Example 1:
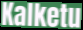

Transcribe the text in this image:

Kalketu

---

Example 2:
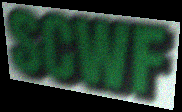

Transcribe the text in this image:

SCWF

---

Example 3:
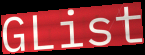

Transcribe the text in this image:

GList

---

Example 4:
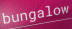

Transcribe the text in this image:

bungalow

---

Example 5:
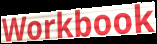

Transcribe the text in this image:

Workbook